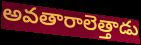
అవతారాలెత్తాడు